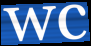
wc